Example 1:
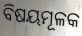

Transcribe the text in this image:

ବିଷୟମୂଳକ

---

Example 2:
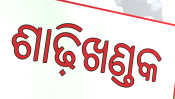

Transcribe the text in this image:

ଶାଢ଼ିଖଣ୍ଡକ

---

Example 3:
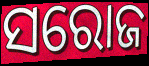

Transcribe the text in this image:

ସରୋଜ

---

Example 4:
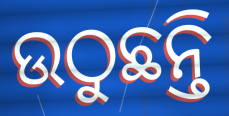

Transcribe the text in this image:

ଉଠୁଛନ୍ତି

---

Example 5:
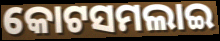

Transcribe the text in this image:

କୋଟସମଲାଇ